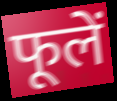
फूलें